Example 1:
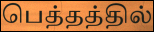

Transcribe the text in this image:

பெத்தத்தில்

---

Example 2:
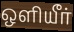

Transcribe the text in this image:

ஒளியீர்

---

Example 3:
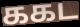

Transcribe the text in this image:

ககட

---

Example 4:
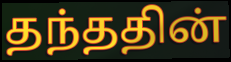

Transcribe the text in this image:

தந்ததின்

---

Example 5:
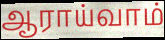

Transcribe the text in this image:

ஆராய்வாம்